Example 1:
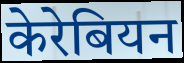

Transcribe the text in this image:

केरेबियन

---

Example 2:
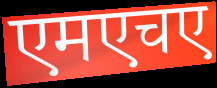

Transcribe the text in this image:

एमएचए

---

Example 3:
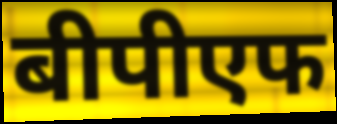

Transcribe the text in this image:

बीपीएफ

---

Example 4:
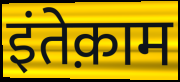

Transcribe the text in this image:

इंतेक़ाम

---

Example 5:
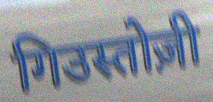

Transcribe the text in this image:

गिउस्तोज़ी